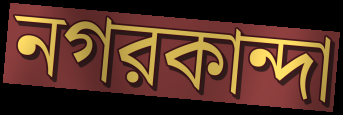
নগরকান্দা